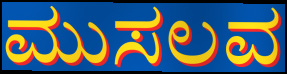
ಮುಸಲವ